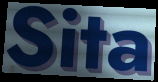
Sita